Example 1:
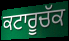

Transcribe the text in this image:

ਕਟਾਰੂਚੱਕ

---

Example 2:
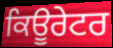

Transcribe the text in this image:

ਕਿਊਰੇਟਰ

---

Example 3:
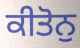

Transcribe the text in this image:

ਕੀਤੋਨੁ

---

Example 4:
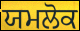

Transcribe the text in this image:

ਯਮਲੋਕ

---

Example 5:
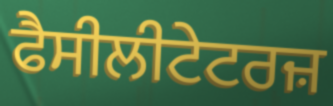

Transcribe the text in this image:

ਫੈਸੀਲੀਟੇਟਰਜ਼